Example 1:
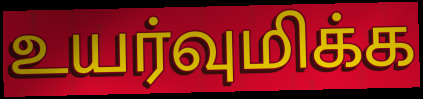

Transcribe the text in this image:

உயர்வுமிக்க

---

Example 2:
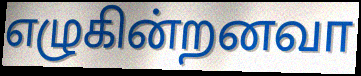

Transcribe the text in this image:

எழுகின்றனவா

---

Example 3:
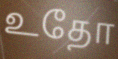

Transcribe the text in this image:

உதோ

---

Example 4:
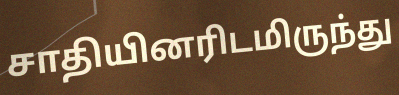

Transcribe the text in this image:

சாதியினரிடமிருந்து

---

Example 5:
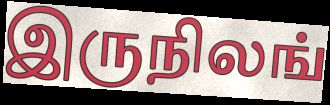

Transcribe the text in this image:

இருநிலங்